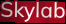
Skylab